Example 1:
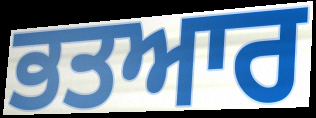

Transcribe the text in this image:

ਭਤਆਰ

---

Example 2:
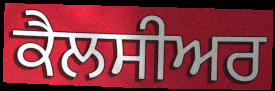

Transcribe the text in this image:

ਕੈਲਸੀਅਰ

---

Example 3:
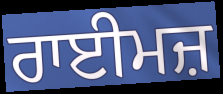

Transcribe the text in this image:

ਰਾਈਮਜ਼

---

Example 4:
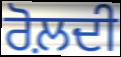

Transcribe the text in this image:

ਰੋਲ਼ਦੀ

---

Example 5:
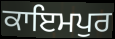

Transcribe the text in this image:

ਕਾਇਮਪੁਰ